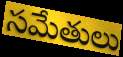
సమేతులు